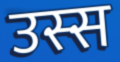
उस्स